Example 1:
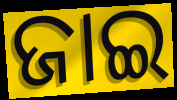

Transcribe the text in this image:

ଜାଇ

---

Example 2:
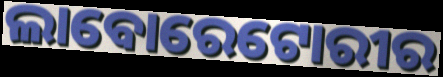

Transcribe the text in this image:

ଲାବୋରେଟୋରୀର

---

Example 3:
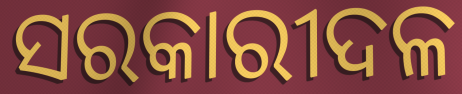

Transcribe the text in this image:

ସରକାରୀଦଳ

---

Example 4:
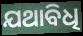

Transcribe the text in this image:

ଯଥାବିଧି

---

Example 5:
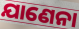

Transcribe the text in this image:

ଯାଣେନା